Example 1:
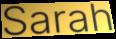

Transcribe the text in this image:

Sarah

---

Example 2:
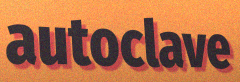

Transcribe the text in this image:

autoclave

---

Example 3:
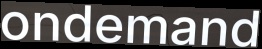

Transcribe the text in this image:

ondemand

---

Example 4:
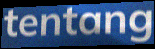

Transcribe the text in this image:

tentang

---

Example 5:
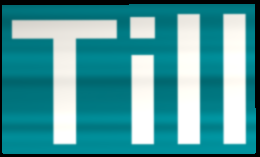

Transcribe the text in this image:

Till